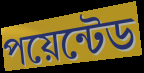
পয়েন্টেড